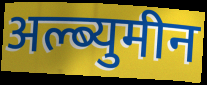
अल्ब्युमीन